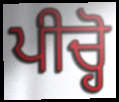
ਪੀਚ੍ਹੋ